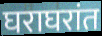
घराघरांत